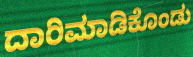
ದಾರಿಮಾಡಿಕೊಂಡು